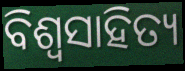
ବିଶ୍ଵସାହିତ୍ୟ